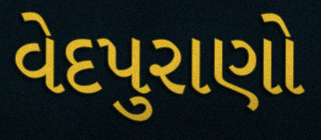
વેદપુરાણો